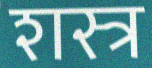
शस्त्र